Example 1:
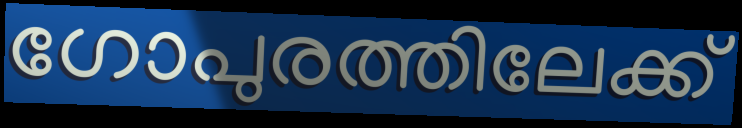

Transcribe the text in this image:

ഗോപുരത്തിലേക്ക്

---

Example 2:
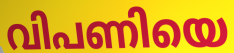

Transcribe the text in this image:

വിപണിയെ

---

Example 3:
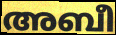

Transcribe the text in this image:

അബീ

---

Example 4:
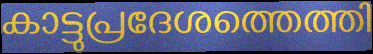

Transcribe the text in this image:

കാട്ടുപ്രദേശത്തെത്തി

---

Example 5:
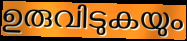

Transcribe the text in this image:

ഉരുവിടുകയും